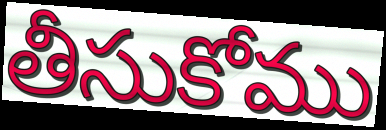
తీసుకోము